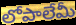
లోపాలేమీ